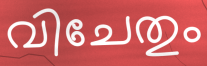
വിചേതും